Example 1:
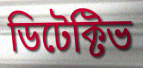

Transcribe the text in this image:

ডিটেক্টিভ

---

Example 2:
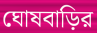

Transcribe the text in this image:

ঘোষবাড়ির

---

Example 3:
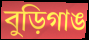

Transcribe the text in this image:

বুড়িগাঙ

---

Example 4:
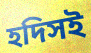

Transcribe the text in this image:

হদিসই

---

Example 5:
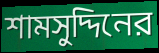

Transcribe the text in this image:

শামসুদ্দিনের